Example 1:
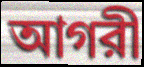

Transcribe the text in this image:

আগরী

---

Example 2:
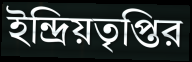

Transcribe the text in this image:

ইন্দ্রিয়তৃপ্তির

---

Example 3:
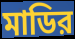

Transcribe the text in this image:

মাডির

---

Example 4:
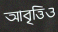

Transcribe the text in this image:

আবৃত্তিও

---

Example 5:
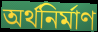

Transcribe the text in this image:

অর্থনির্মাণ